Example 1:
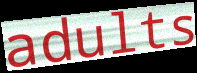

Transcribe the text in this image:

adults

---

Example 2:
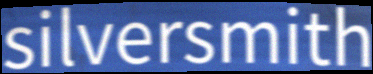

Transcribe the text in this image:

silversmith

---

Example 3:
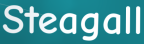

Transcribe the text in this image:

Steagall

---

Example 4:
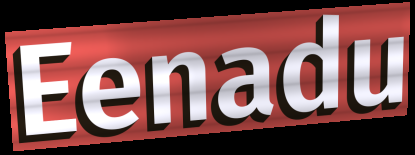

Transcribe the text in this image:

Eenadu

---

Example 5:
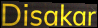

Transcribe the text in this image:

Disakar